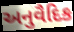
અનુવૈદિક